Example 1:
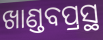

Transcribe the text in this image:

ଖାଣ୍ଡବପ୍ରସ୍ଥ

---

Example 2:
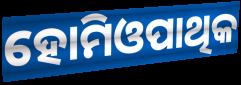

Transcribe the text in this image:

ହୋମିଓପାଥିକ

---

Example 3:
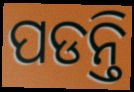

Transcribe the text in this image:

ପଡନ୍ତି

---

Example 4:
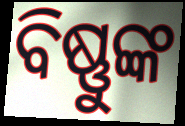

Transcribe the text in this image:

ବିଷ୍ଣୁଙ୍କ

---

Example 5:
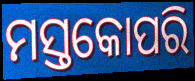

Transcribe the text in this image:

ମସ୍ତକୋପରି